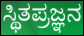
ಸ್ಥಿತಪ್ರಜ್ಞನ